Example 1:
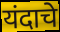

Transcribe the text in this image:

यंदाचे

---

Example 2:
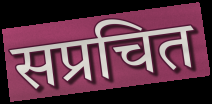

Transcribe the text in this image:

सप्रचित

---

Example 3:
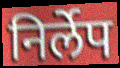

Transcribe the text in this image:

निर्लेप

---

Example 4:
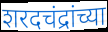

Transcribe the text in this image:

शरदचंद्रांच्या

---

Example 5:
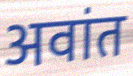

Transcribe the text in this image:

अवांत